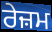
ਰੇਜ਼ਮ